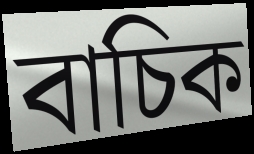
বাচিক